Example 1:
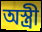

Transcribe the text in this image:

অস্ত্রী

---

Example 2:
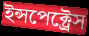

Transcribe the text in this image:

ইন্সপেক্ট্রেস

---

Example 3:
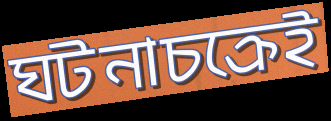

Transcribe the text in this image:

ঘটনাচক্রেই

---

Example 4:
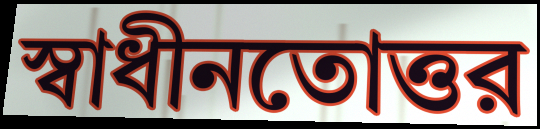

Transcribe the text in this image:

স্বাধীনতোত্তর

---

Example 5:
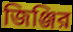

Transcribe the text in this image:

জিঞ্জির